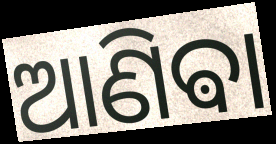
ଆଣିଵା